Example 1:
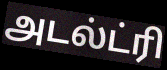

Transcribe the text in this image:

அடல்ட்ரி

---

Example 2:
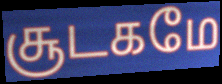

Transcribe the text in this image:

சூடகமே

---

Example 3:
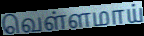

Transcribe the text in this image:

வெள்ளமாய்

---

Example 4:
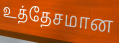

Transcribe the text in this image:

உத்தேசமான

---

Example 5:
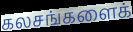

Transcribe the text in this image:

கலசங்களைக்